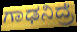
ಗಾಢನಿದ್ರೆ